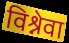
विश्नेवा